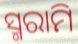
ସ୍ମରାମି